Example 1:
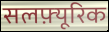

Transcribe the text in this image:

सलफ़्यूरिक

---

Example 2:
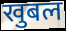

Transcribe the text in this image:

खुबल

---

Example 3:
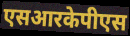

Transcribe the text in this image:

एसआरकेपीएस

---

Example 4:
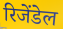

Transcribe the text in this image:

रिजेंडेल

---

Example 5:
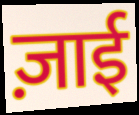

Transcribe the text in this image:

ज़ाई